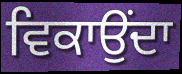
ਵਿਕਾਉੰਦਾ